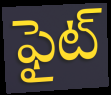
ఫైట్